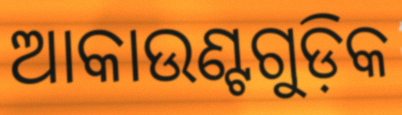
ଆକାଉଣ୍ଟଗୁଡ଼ିକ